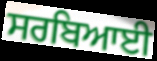
ਸਰਬਿਆਈ